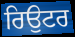
ਰਿਉਟਰ